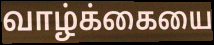
வாழ்க்கையை